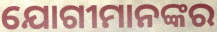
ଯୋଗୀମାନଙ୍କର